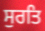
ਸੁਰਤਿ